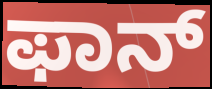
ಫಾನ್